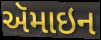
ઍમાઇન